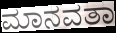
ಮಾನವತಾ